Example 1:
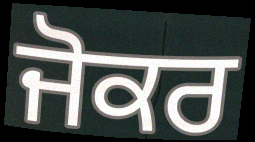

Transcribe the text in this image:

ਜੋਕਰ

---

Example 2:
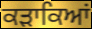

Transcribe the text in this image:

ਕੜਾਕਿਆਂ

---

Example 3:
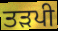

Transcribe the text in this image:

ਤੜਪੀ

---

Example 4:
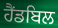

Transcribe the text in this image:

ਹੈਂਡਬਿਲ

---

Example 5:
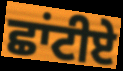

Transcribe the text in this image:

ਛਾਂਟੀਏ